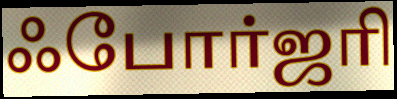
ஃபோர்ஜரி